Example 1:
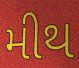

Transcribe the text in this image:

મીથ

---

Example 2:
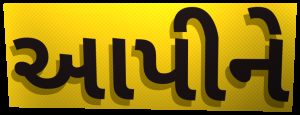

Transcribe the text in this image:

આપીને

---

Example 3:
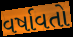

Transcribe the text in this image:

વર્ષાવતો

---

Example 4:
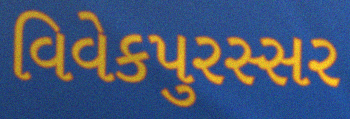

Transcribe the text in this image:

વિવેકપુરસ્સર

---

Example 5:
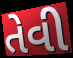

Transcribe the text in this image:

તેવી